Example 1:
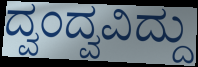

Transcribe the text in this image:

ದ್ವಂದ್ವವಿದ್ದು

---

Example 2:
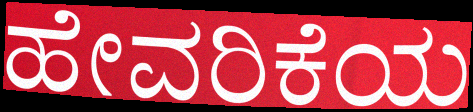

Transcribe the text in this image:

ಹೇವರಿಕೆಯ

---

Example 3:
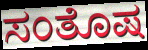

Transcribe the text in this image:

ಸಂತೊಷ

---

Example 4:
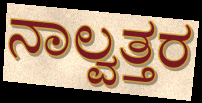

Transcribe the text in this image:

ನಾಲ್ವತ್ತರ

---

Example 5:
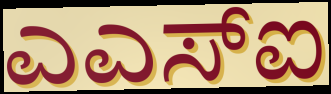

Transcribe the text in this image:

ಎಎಸ್ಐ